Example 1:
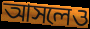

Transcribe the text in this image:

আসলেও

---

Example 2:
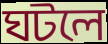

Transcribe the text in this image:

ঘটলে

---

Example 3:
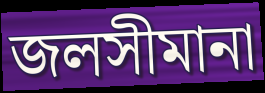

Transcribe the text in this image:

জলসীমানা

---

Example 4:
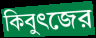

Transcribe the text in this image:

কিবুৎজের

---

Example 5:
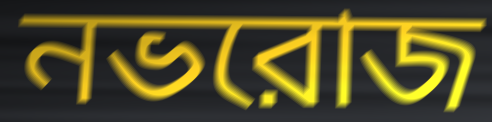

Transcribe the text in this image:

নভরোজ